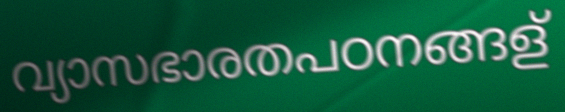
വ്യാസഭാരതപഠനങ്ങള്